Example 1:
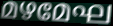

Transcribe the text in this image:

മഴമേഘ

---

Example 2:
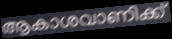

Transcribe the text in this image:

ആകാശവാണിക്ക്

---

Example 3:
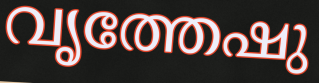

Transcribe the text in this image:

വൃത്തേഷു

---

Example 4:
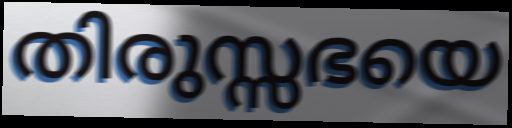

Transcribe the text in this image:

തിരുസ്സഭയെ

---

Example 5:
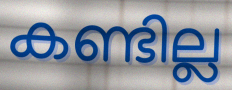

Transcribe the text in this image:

കണ്ടില്ല